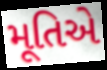
મૂતિએ